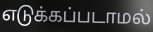
எடுக்கப்படாமல்